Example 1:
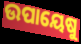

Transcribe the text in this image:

ଉପାୟେଷୁ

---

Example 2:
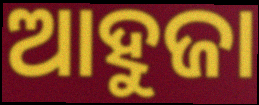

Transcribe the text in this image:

ଆହୁଜା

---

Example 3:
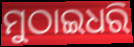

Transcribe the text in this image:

ମୁଠାଇଧରି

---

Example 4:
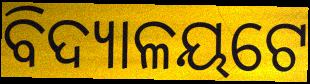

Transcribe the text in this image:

ବିଦ୍ୟାଳୟଟେ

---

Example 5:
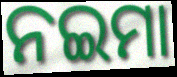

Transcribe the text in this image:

ନଇମା